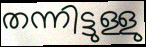
തന്നിട്ടുള്ളു